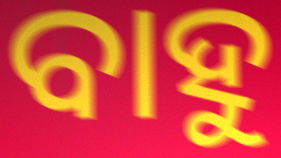
ବାହୁ